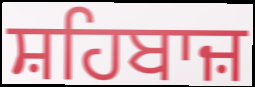
ਸ਼ਹਿਬਾਜ਼